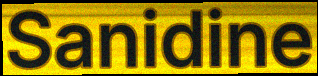
Sanidine